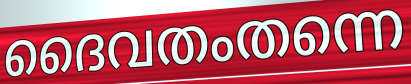
ദൈവതംതന്നെ